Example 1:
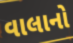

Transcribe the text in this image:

વાલાનો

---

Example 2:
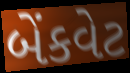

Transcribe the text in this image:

બેંકવેટ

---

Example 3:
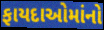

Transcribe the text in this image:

ફાયદાઓમાંનો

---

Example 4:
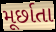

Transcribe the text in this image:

મૂર્છાતા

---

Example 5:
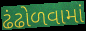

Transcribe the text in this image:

ઢંઢોળવામાં